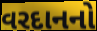
વરદાનનો